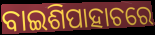
ବାଇଶିପାହାଚରେ